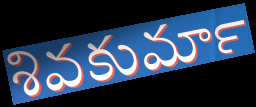
శివకుమార్‍